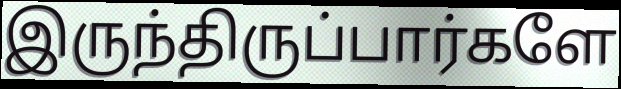
இருந்திருப்பார்களே